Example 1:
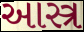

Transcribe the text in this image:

આસ્ત્ર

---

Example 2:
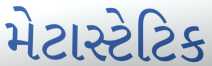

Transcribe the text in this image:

મેટાસ્ટેટિક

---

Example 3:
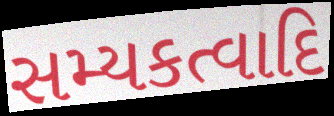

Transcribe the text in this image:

સમ્યકત્વાદિ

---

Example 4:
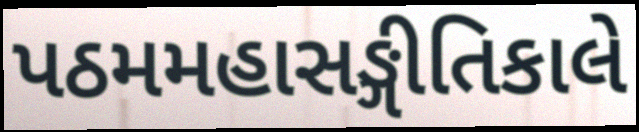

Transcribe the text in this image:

પઠમમહાસઙ્ગીતિકાલે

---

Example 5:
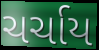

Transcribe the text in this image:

ચર્ચાય